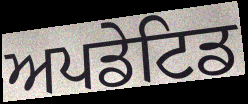
ਅਪਡੇਟਿਡ